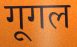
गूगल